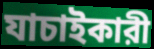
যাচাইকারী